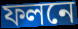
ফলনে